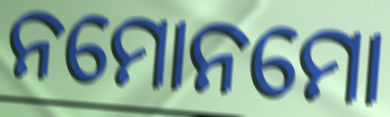
ନମୋନମୋ